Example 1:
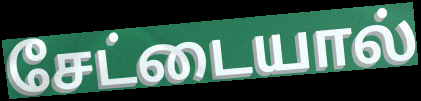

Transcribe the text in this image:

சேட்டையால்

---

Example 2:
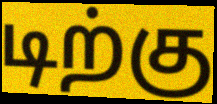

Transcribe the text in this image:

டிற்கு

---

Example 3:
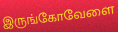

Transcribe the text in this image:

இருங்கோவேளை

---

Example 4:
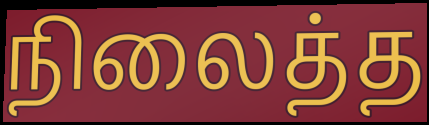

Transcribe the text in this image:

நிலைத்த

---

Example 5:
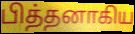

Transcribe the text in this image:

பித்தனாகிய